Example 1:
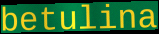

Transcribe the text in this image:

betulina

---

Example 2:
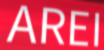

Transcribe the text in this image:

AREI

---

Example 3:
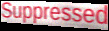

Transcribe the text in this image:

Suppressed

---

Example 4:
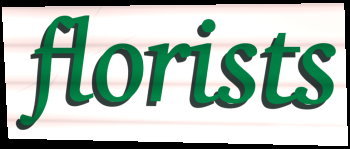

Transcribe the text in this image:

florists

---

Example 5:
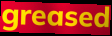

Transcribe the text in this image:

greased